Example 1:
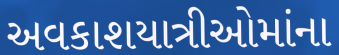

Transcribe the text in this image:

અવકાશયાત્રીઓમાંના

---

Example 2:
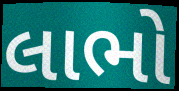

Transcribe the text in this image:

લાભો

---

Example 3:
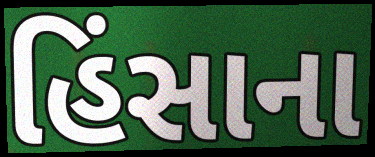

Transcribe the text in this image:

હિંસાના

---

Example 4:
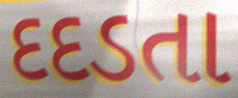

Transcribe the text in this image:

દદડતા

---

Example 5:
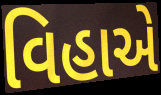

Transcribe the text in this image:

વિહાએ